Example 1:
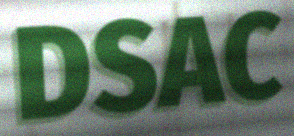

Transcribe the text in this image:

DSAC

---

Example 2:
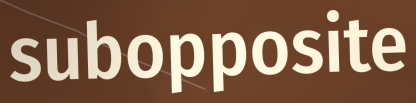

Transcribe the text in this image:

subopposite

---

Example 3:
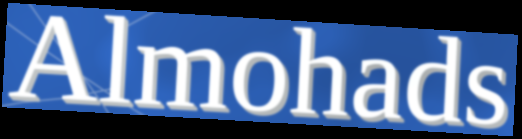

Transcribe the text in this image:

Almohads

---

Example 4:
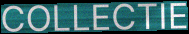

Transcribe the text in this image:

COLLECTIE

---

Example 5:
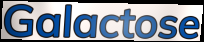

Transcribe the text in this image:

Galactose